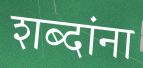
शब्दांना